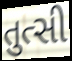
તુત્સી